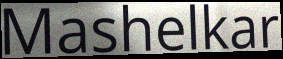
Mashelkar